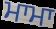
ਮਾਮਾ